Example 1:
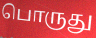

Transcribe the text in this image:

பொருது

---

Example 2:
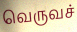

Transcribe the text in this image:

வெருவச்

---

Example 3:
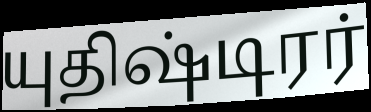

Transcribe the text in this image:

யுதிஷ்டிரர்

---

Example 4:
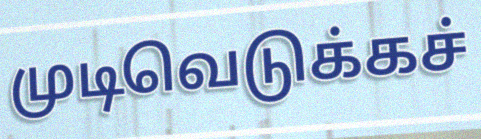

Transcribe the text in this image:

முடிவெடுக்கச்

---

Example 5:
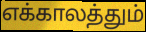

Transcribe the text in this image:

எக்காலத்தும்